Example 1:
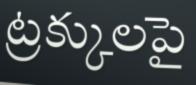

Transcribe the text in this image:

ట్రక్కులపై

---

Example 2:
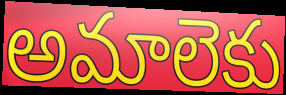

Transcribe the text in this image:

అమాలెకు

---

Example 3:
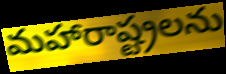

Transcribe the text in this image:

మహారాష్ట్రలను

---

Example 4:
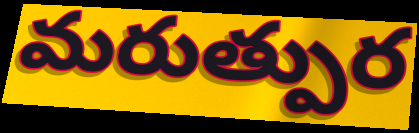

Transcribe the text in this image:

మరుత్పుర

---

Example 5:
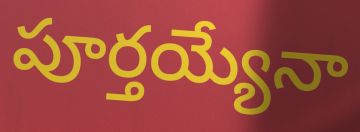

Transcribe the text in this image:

పూర్తయ్యేనా